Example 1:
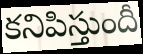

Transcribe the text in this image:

కనిపిస్తుందీ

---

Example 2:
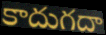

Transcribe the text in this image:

కాదుగదా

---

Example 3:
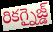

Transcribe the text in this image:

రికగ్నైజ్డ్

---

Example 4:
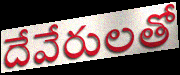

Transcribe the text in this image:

దేవేరులతో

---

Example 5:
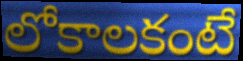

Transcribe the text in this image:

లోకాలకంటే